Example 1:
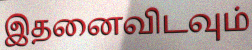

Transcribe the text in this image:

இதனைவிடவும்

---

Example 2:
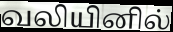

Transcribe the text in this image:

வலியினில்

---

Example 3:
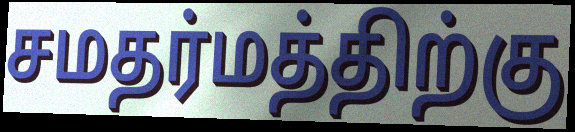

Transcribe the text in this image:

சமதர்மத்திற்கு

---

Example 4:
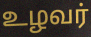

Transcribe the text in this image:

உழவர்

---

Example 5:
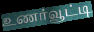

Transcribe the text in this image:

உணர்வூட்டி